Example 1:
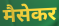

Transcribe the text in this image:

मैसेकर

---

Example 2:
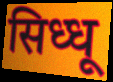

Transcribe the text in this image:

सिध्धू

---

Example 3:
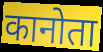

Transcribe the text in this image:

कानोता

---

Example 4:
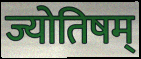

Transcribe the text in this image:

ज्योतिषम्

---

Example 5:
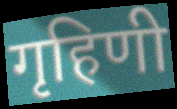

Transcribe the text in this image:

गृहिणी